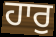
ਹਾਰੁ